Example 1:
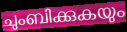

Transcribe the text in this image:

ചുംബിക്കുകയും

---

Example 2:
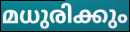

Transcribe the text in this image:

മധുരിക്കും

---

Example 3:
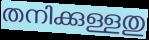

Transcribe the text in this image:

തനിക്കുള്ളതു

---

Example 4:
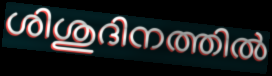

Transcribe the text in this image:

ശിശുദിനത്തിൽ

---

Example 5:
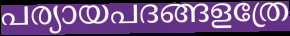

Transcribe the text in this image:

പര്യായപദങ്ങളത്രേ